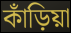
কাঁড়িয়া